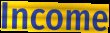
Income